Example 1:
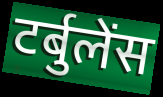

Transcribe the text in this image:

टर्बुलेंस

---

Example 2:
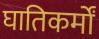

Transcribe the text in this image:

घातिकर्मों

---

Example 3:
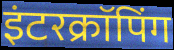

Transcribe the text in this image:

इंटरक्रॉपिंग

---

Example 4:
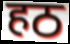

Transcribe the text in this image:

हठ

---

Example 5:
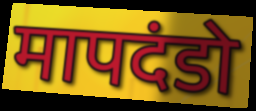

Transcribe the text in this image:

मापदंडो